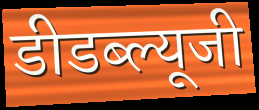
डीडब्ल्यूजी